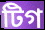
টিগ